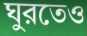
ঘুরতেও